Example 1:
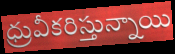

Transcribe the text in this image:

ధ్రువీకరిస్తున్నాయి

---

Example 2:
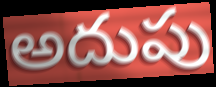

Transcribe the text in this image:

అదుపు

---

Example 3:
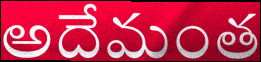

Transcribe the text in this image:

అదేమంత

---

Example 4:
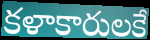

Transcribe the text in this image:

కళాకారులకే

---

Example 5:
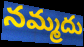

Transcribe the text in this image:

నమ్మదు